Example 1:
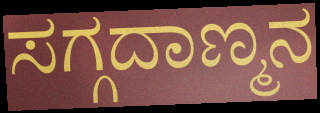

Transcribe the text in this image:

ಸಗ್ಗದಾಣ್ಮನ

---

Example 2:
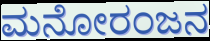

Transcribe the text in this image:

ಮನೋರಂಜನ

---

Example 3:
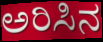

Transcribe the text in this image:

ಅರಿಸಿನ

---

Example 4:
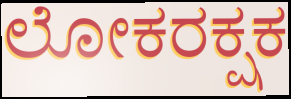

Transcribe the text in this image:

ಲೋಕರಕ್ಷಕ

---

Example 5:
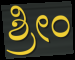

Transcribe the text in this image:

ಶ್ರೀಂ